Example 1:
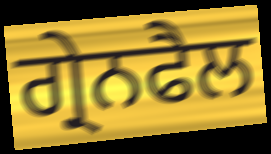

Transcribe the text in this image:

ਗ੍ਰੇਨਫੈਲ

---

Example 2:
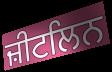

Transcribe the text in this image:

ਜ਼ੀਟਲਿਨ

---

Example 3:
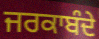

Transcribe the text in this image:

ਜਰਕਾਬੰਦੇ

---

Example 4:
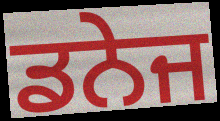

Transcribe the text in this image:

ਡਨੇਜ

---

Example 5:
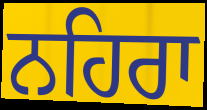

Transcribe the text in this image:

ਨਹਿਰਾ